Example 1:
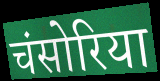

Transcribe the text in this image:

चंसोरिया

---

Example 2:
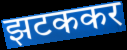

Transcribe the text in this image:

झटककर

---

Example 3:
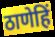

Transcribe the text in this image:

ठाणेहिं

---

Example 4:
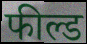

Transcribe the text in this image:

फील्ड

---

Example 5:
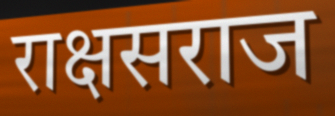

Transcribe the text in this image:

राक्षसराज